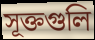
সূক্তগুলি